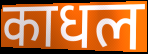
काधल